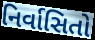
નિર્વાસિતો